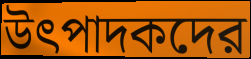
উৎপাদকদের